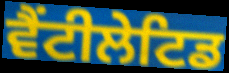
ਵੈਂਟੀਲੇਟਿਡ